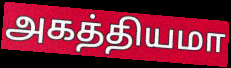
அகத்தியமா